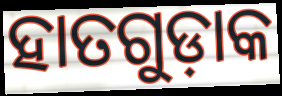
ହାତଗୁଡ଼ାକ